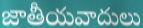
జాతీయవాదులు